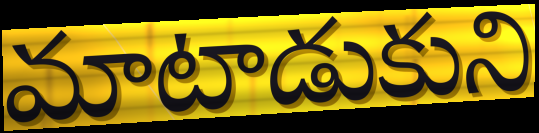
మాటాడుకుని